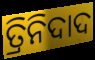
ତ୍ରିନିଦାଦ